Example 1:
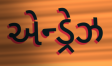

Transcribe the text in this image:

એન્ડ્રેઝ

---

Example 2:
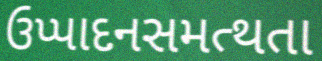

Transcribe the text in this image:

ઉપ્પાદનસમત્થતા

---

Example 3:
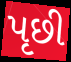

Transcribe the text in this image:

પૃછી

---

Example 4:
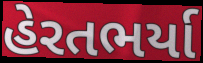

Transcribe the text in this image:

હેરતભર્યા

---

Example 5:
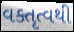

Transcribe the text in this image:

વક્તૃત્વથી